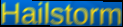
Hailstorm